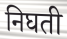
निघती